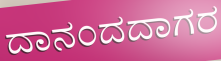
ದಾನಂದದಾಗರ